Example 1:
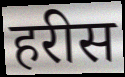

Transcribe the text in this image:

हरीस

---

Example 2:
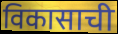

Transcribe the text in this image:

विकासाची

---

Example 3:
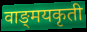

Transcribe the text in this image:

वाङ्‌मयकृती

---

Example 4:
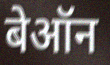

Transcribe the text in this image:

बेऑन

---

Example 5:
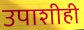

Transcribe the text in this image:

उपाशीही